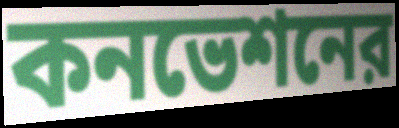
কনভেশনের